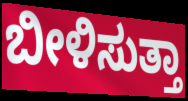
ಬೀಳಿಸುತ್ತಾ